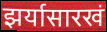
झर्यासारखं